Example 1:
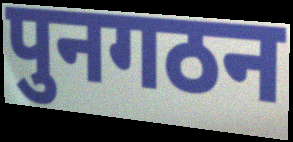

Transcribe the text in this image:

पुनगठन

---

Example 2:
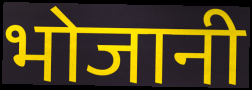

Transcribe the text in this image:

भोजानी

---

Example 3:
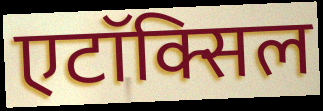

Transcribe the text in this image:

एटॉक्सिल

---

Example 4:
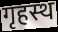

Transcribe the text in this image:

गृहस्थ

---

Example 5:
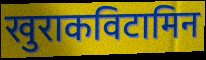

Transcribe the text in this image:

खुराकविटामिन